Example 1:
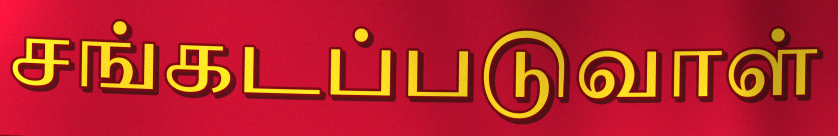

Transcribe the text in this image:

சங்கடப்படுவாள்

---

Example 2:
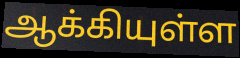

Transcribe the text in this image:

ஆக்கியுள்ள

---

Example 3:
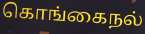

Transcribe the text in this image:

கொங்கைநல்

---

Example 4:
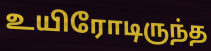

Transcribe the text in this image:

உயிரோடிருந்த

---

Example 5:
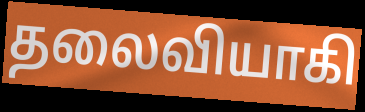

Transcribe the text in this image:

தலைவியாகி